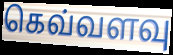
கெவ்வளவு